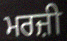
ਮਰਜ਼ੀ